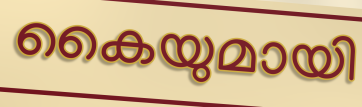
കൈയുമായി